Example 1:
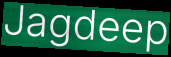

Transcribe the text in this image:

Jagdeep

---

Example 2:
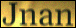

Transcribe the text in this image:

Jnan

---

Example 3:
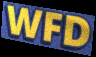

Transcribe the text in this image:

WFD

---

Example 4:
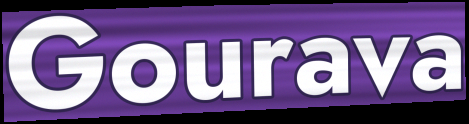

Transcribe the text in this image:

Gourava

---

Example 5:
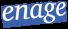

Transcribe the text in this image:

enage